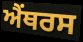
ਐਂਥਰਸ